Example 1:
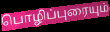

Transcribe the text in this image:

பொழிப்புரையும்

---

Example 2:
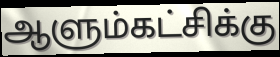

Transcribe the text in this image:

ஆளும்கட்சிக்கு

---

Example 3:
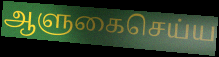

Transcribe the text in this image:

ஆளுகைசெய்ய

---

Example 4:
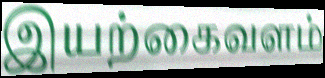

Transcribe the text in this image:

இயற்கைவளம்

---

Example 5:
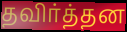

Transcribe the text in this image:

தவிர்த்தன